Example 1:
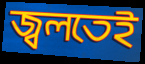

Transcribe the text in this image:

জ্বলতেই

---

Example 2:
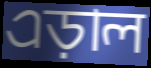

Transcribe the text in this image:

এড়াল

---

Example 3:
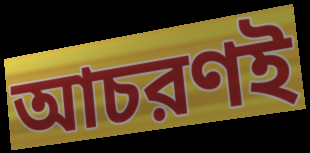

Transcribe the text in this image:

আচরণই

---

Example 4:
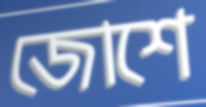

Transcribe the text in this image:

জোশে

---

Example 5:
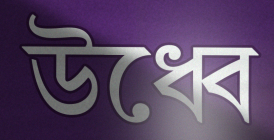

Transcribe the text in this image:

উধ্বে